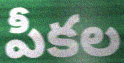
పీకల